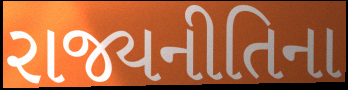
રાજ્યનીતિના